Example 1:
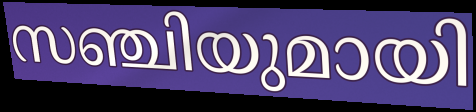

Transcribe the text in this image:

സഞ്ചിയുമായി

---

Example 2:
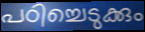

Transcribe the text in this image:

പഠിച്ചെടുക്കും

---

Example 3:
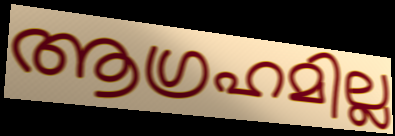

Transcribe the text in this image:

ആഗ്രഹമില്ല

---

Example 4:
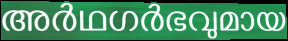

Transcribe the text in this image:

അർഥഗർഭവുമായ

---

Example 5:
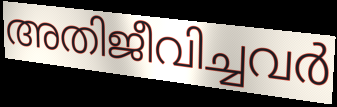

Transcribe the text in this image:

അതിജീവിച്ചവർ